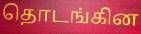
தொடங்கின